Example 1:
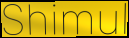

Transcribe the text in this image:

Shimul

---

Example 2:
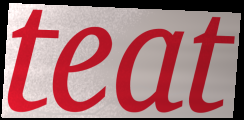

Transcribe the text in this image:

teat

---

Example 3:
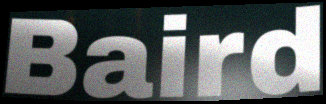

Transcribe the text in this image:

Baird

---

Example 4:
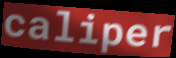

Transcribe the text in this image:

caliper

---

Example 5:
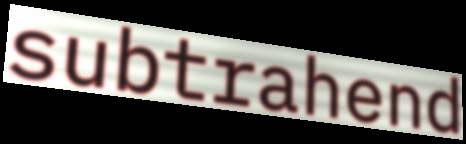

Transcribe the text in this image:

subtrahend